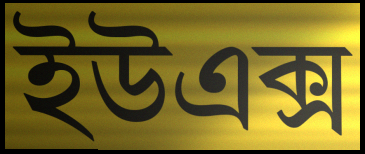
ইউএক্স